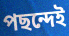
পছন্দেই